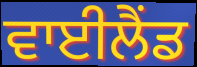
ਵਾਈਲੈਂਡ